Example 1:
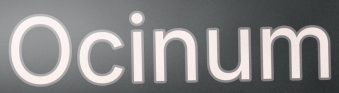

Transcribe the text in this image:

Ocinum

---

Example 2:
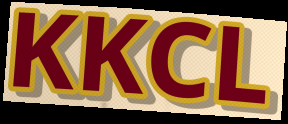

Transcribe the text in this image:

KKCL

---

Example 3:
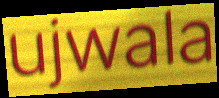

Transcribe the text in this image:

ujwala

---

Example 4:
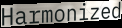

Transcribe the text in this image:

Harmonized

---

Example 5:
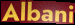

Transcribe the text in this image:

Albani